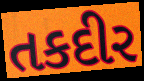
તકદીર